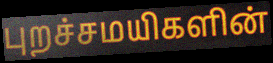
புறச்சமயிகளின்